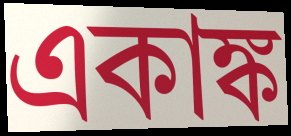
একাঙ্ক